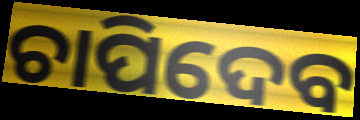
ଚାପିଦେବ